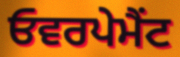
ਓਵਰਪੇਮੈਂਟ